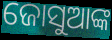
ଜୋସୁଆଙ୍କ